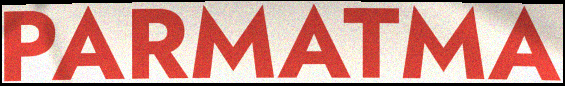
PARMATMA